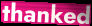
thanked